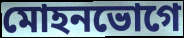
মোহনভোগে